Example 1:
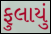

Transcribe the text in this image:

ફુલાયું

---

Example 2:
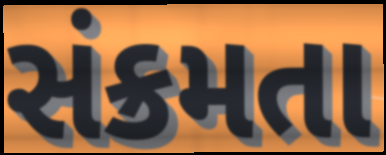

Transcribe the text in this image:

સંક્રમતા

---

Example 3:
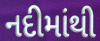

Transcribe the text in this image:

નદીમાંથી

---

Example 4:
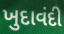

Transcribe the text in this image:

ખુદાવંદી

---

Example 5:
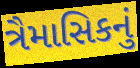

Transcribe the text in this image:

ત્રૈમાસિકનું